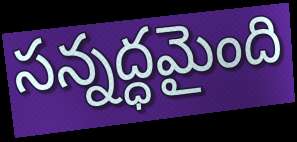
సన్నద్ధమైంది